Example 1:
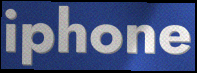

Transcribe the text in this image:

iphone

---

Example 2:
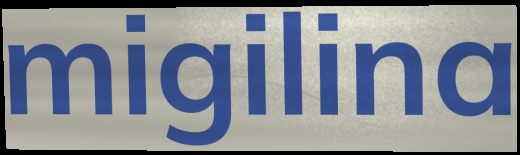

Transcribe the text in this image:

migilina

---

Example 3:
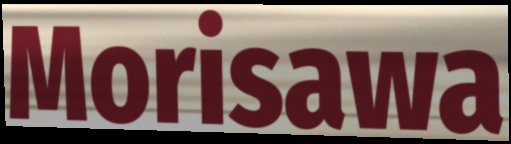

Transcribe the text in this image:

Morisawa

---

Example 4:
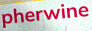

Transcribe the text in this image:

pherwine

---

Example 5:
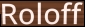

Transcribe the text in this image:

Roloff